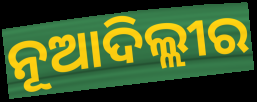
ନୂଆଦିଲ୍ଲୀର